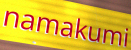
namakumi